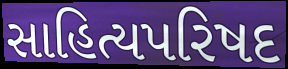
સાહિત્યપરિષદ